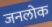
जनलोक